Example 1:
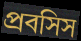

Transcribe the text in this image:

প্রবসিস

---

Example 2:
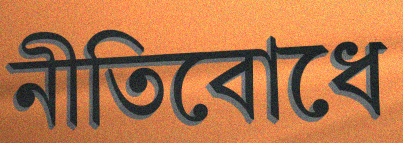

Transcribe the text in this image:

নীতিবোধে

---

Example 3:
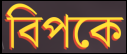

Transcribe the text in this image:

বিপকে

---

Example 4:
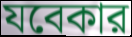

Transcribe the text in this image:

যবেকার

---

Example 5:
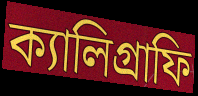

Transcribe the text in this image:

ক্যালিগ্রাফি